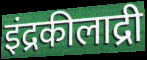
इंद्रकीलाद्री